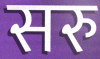
सरु